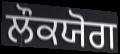
ਲੌਕਯੋਗ